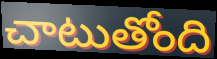
చాటుతోంది